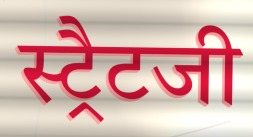
स्‍ट्रैटजी